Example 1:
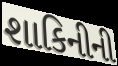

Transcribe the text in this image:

શાકિનીની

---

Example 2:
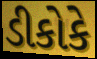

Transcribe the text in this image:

ડીકોકે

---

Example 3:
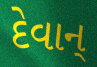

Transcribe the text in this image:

દેવાન્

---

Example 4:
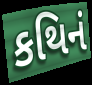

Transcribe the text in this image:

કથિનં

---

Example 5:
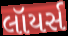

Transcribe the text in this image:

લૉયર્સ